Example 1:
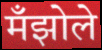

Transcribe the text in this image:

मँझोले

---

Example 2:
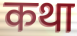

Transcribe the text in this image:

कथा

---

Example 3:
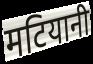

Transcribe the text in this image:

मटियानी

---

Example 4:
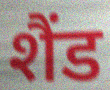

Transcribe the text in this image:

शैंड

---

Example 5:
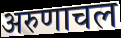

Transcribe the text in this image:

अरुणाचल